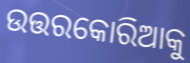
ଉତ୍ତରକୋରିଆକୁ